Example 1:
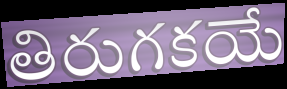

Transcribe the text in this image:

తిరుగకయే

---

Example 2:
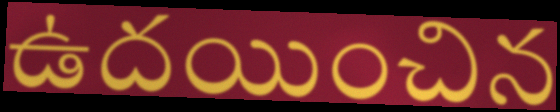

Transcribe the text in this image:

ఉదయించిన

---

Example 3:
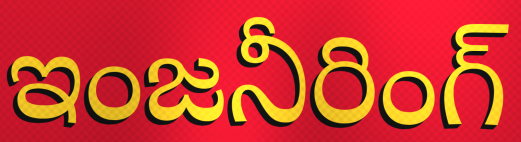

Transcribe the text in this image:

ఇంజనీరింగ్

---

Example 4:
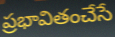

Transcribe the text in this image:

ప్రభావితంచేసే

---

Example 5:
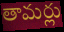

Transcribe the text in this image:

తామర్లు